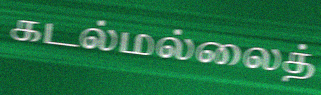
கடல்மல்லைத்